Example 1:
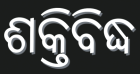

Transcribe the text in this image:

ଶକ୍ତିବିଦ୍ଧ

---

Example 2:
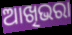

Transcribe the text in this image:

ଆଖିଭରା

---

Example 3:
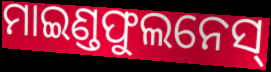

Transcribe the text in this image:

ମାଇଣ୍ଡଫୁଲନେସ୍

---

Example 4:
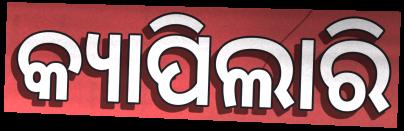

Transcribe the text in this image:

କ୍ୟାପିଲାରି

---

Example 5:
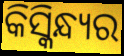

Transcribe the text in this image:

କିସ୍କିନ୍ଧ୍ୟର